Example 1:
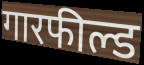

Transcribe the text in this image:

गारफील्ड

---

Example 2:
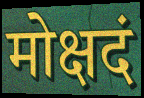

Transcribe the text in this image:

मोक्षदं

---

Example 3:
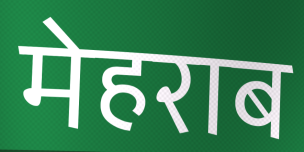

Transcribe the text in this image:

मेहराब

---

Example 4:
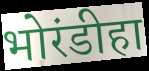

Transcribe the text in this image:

भोरंडीहा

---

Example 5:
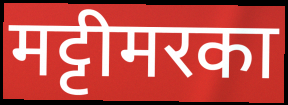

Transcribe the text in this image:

मट्टीमरका